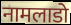
नामलाडो